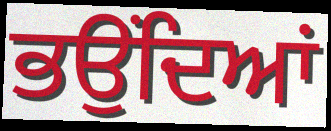
ਭਉਂਦਿਆਂ